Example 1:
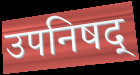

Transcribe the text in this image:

उपनिषद्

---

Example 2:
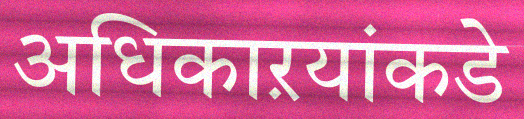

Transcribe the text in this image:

अधिकाऱयांकडे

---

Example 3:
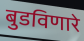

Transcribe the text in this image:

बुडविणारे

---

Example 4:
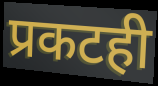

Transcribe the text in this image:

प्रकटही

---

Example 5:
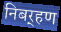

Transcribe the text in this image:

निबर्हण